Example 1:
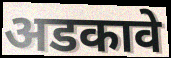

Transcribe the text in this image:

अडकावे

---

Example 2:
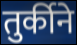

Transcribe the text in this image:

तुर्कीने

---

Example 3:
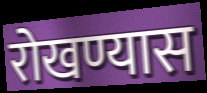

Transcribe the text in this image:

रोखण्यास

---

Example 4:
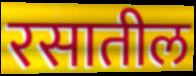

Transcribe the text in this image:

रसातील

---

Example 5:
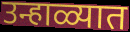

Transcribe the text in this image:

उन्हाळ्यात